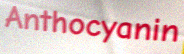
Anthocyanin